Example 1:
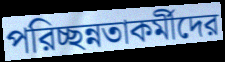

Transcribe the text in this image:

পরিচ্ছন্নতাকর্মীদের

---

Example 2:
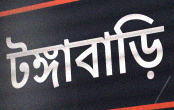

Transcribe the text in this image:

টঙ্গাবাড়ি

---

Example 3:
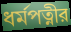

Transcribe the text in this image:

ধর্মপত্নীর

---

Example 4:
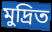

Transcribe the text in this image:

মুদ্রিত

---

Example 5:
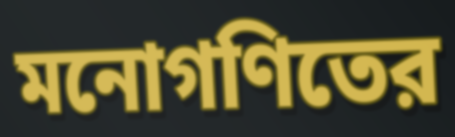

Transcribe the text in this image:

মনোগণিতের